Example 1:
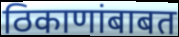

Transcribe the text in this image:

ठिकाणांबाबत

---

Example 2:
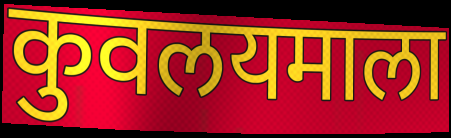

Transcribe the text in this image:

कुवलयमाला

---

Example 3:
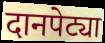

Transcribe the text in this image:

दानपेट्या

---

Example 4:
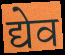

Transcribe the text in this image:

द्येव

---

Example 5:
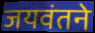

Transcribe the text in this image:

जयवंतने